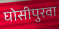
घोसीपुरवा